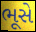
ભૂસે